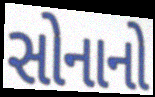
સોનાનો